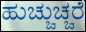
ಹುಚ್ಚುಚ್ಚರೆ